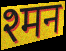
श्मन